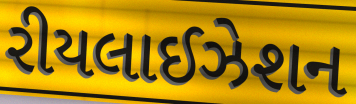
રીયલાઈઝેશન